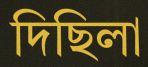
দিছিলা